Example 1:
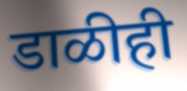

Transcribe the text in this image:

डाळीही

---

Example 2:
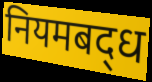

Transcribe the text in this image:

नियमबद्ध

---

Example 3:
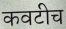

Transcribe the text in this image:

कवटीच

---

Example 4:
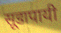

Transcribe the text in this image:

सूडापायी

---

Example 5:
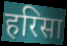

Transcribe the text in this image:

हरिसा